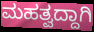
ಮಹತ್ವದ್ದಾಗಿ